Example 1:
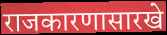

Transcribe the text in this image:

राजकारणासारखे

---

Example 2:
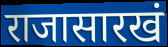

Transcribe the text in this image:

राजासारखं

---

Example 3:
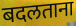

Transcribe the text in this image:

बदलताना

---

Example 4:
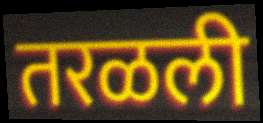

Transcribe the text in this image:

तरळली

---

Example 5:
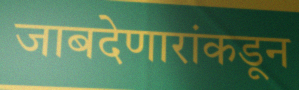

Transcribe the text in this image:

जाबदेणारांकडून